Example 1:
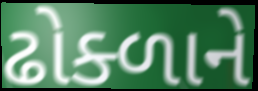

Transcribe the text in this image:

ઢોક્ળાને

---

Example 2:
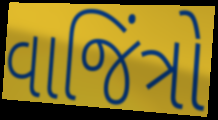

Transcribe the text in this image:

વાજિંત્રો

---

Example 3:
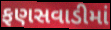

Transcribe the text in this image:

ફણસવાડીમાં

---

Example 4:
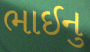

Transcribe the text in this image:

ભાઈનુ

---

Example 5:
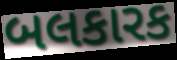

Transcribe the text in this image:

બલકારક